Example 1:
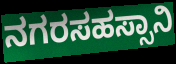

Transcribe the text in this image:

ನಗರಸಹಸ್ಸಾನಿ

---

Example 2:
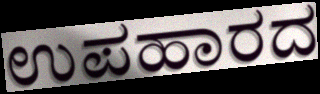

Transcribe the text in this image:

ಉಪಹಾರದ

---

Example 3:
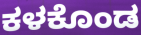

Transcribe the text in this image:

ಕಳಕೊಂಡ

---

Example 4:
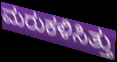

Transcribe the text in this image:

ಮರುಕಳಿಸಿತ್ತು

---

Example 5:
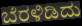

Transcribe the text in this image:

ಬೆರಳಿಡಿದು